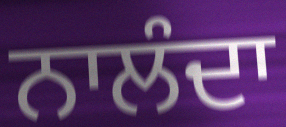
ਨਾਲੰਦਾ